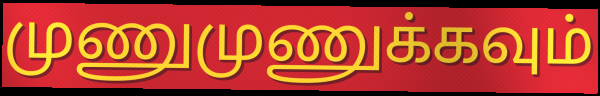
முணுமுணுக்கவும்